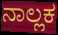
ನಾಲ್ಲಕ